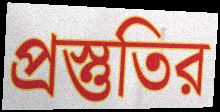
প্রস্তুতির